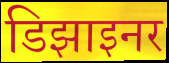
डिझाइनर